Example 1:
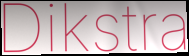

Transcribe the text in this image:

Dikstra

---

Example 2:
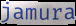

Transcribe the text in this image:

jamura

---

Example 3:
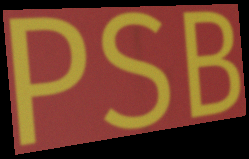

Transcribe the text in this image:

PSB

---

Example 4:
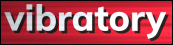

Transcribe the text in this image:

vibratory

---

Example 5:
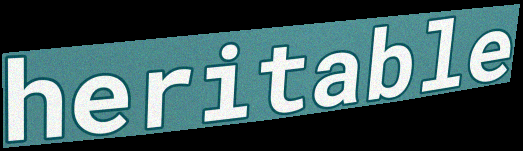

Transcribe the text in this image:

heritable